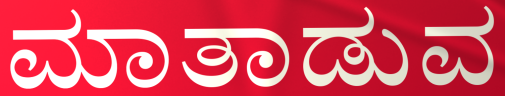
ಮಾತಾಡುವ